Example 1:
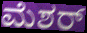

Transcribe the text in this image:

ಮೆಶರ್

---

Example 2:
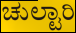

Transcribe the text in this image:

ಚುಲ್ಟಾರಿ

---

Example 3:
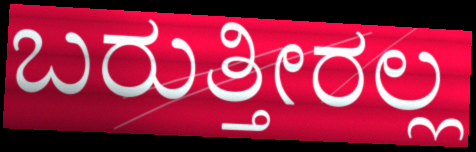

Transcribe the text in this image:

ಬರುತ್ತೀರಲ್ಲ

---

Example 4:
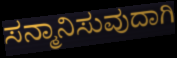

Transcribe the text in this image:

ಸನ್ಮಾನಿಸುವುದಾಗಿ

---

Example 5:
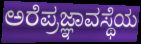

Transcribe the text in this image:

ಅರೆಪ್ರಜ್ಞಾವಸ್ಥೆಯ